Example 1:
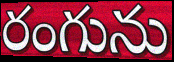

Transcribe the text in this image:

రంగును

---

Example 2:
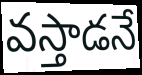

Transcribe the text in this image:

వస్తాడనే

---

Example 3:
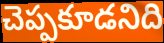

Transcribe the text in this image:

చెప్పకూడనిది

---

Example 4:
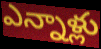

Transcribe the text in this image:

ఎన్నాళ్లు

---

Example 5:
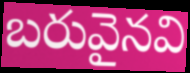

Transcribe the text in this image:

బరువైనవి